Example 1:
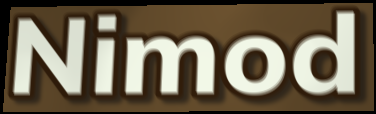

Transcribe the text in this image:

Nimod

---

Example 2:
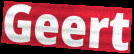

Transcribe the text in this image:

Geert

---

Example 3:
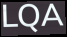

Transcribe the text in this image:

LQA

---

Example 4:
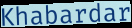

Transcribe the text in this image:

Khabardar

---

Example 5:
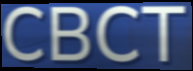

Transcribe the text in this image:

CBCT